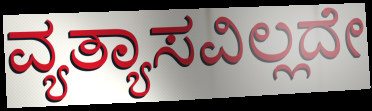
ವ್ಯತ್ಯಾಸವಿಲ್ಲದೇ